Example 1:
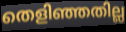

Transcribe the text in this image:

തെളിഞ്ഞതില്ല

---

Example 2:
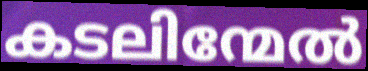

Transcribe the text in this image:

കടലിന്മേൽ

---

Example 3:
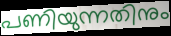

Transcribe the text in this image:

പണിയുന്നതിനും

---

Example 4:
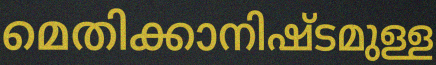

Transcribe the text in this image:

മെതിക്കാനിഷ്ടമുള്ള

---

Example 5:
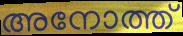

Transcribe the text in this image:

അനോത്ത്